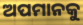
ଅପମାନକୁ